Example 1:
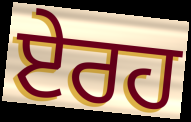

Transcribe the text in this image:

ਏਰਹ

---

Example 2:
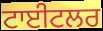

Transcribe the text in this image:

ਟਾਈਟਲਰ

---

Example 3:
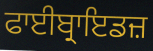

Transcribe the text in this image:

ਫਾਈਬ੍ਰਾਇਡਜ਼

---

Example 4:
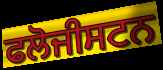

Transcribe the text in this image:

ਫਲੋਜੀਸਟਨ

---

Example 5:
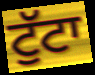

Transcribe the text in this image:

ਟੁੱਟਾ